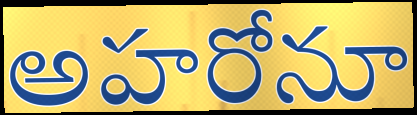
అహరోనూ